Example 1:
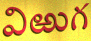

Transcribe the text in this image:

విఱుగ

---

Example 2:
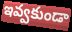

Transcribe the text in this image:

ఇవ్వకుండా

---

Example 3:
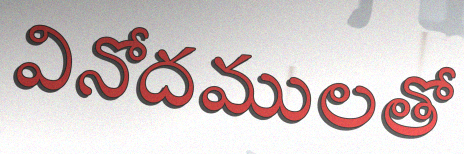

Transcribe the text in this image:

వినోదములతో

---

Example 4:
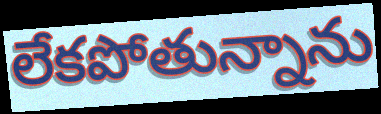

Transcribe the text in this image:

లేకపోతున్నాను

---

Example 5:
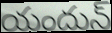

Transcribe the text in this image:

యందున్